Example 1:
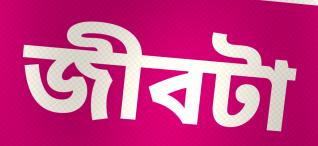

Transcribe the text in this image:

জীবটা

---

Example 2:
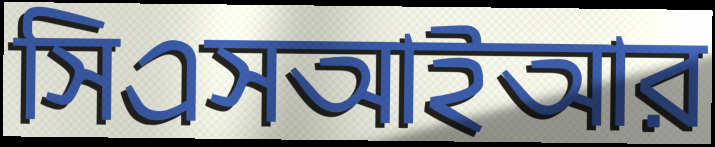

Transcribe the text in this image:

সিএসআইআর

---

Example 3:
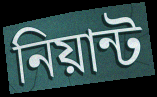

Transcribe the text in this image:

নিয়ান্ট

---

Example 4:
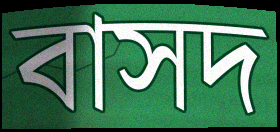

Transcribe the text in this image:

বাসদ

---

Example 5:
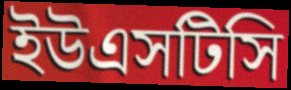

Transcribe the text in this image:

ইউএসটিসি